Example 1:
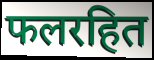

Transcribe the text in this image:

फलरहित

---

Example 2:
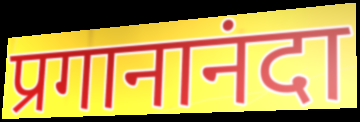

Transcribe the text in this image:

प्रगानानंदा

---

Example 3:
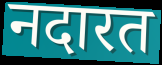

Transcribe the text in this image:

नदारत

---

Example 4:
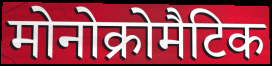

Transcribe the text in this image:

मोनोक्रोमैटिक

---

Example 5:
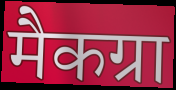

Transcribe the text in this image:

मैकग्रा